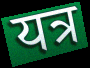
यत्र